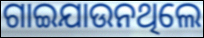
ଗାଇଯାଉନଥିଲେ